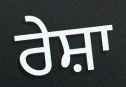
ਰੇਸ਼ਾ